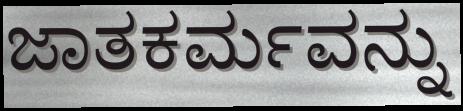
ಜಾತಕರ್ಮವನ್ನು